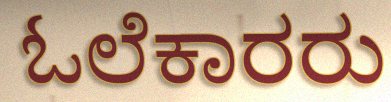
ಓಲೆಕಾರರು